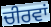
ਚੀਰਵਾਂ